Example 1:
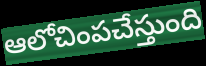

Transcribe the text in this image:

ఆలోచింపచేస్తుంది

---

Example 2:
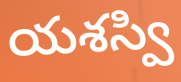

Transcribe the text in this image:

యశస్వి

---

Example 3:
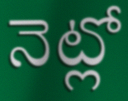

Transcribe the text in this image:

నెట్లో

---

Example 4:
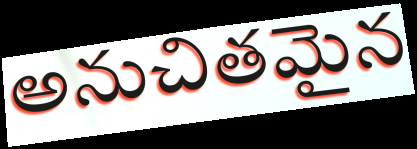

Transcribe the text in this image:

అనుచితమైన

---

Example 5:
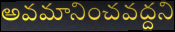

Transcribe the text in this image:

అవమానించవద్దని